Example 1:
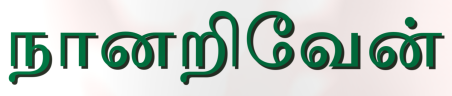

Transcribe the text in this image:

நானறிவேன்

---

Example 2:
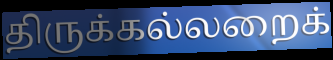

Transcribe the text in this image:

திருக்கல்லறைக்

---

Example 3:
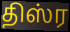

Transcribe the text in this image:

திஸ்ர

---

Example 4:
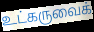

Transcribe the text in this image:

உட்கருவைக்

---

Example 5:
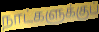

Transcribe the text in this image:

நாட்களுக்குப்